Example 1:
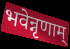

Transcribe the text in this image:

भवेन्नृणाम्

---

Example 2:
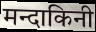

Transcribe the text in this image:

मन्दाकिनी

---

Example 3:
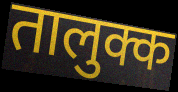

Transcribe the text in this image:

तालुक्क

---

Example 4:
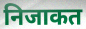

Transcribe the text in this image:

निजाकत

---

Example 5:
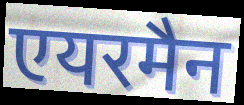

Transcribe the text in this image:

एयरमैन